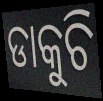
ଡାକୁଚି